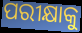
ପରୀକ୍ଷାକୁ